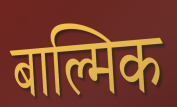
बाल्मिक